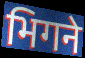
भिगने